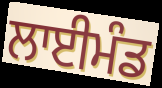
ਲਾਈਮੰਡ